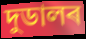
দুডালৰ